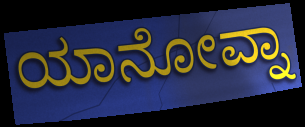
ಯಾನೋವ್ನಾ